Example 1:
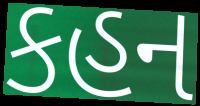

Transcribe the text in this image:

કહન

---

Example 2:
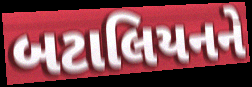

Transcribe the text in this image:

બટાલિયનને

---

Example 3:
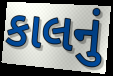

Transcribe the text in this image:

કાલનું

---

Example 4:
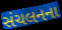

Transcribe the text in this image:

સંચલનના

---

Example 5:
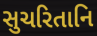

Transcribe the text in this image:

સુચરિતાનિ